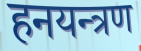
हनयन्त्रण